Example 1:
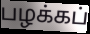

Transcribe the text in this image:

பழக்கப்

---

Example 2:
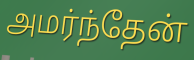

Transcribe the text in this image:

அமர்ந்தேன்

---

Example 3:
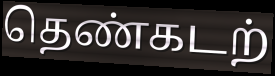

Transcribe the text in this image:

தெண்கடற்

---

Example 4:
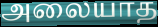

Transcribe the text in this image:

அலையாத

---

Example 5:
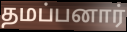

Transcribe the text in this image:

தமப்பனார்